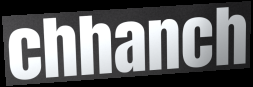
chhanch